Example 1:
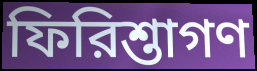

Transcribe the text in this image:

ফিরিশ্তাগণ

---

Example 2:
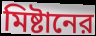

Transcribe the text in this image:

মিষ্টানের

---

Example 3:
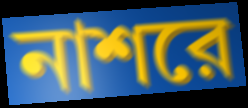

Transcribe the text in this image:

নাশরে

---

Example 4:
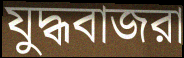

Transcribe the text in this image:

যুদ্ধবাজরা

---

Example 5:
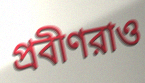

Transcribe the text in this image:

প্রবীণরাও